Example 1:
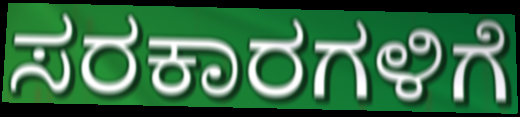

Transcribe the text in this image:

ಸರಕಾರಗಳಿಗೆ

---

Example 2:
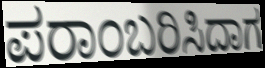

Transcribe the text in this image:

ಪರಾಂಬರಿಸಿದಾಗ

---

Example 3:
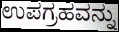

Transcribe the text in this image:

ಉಪಗ್ರಹವನ್ನು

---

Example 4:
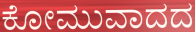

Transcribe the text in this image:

ಕೋಮುವಾದದ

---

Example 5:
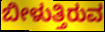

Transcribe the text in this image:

ಬೀಳುತ್ತಿರುವ